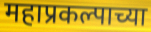
महाप्रकल्पाच्या